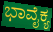
ಭಾವೈಕ್ಯ